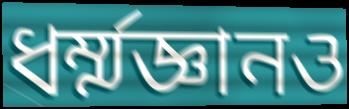
ধর্ম্মজ্ঞানও